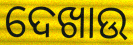
ଦେଖାଉ